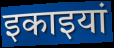
इकाइयां